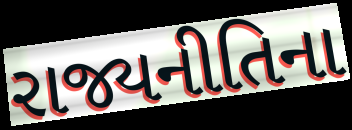
રાજ્યનીતિના